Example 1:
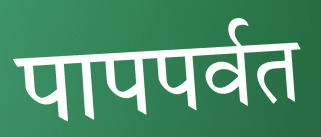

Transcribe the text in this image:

पापपर्वत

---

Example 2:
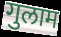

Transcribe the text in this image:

गुलाम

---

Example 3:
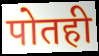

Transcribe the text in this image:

पोतही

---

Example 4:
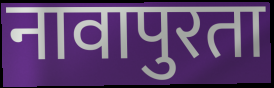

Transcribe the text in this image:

नावापुरता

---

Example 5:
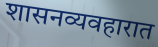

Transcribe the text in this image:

शासनव्यवहारात